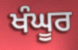
ਖੰਘੂਰ